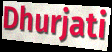
Dhurjati